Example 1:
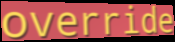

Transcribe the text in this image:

override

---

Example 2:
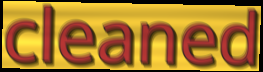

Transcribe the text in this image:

cleaned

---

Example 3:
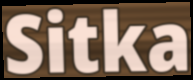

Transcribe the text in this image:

Sitka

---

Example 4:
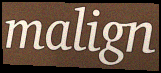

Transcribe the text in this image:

malign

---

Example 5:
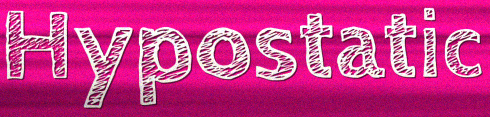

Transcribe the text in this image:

Hypostatic